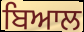
ਬਿਆਲ